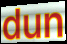
dun